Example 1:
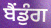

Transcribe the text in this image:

ਬੈਂਡੁੰਗ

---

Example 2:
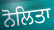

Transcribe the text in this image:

ਨੋਲਿਤਾ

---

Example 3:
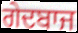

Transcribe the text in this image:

ਗੇਦਬਾਜ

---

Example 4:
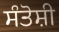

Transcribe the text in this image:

ਸੰਤੋਸ਼ੀ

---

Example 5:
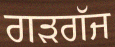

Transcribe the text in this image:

ਗਡ਼ਗੱਜ